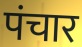
पंचार